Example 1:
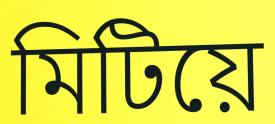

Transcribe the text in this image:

মিটিয়ে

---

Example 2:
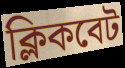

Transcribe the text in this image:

ক্লিকবেট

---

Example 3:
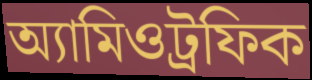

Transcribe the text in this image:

অ্যামিওট্রফিক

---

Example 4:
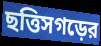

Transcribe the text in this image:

ছত্তিসগড়ের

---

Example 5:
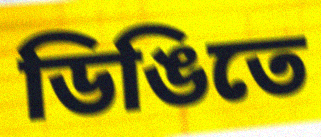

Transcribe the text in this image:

ডিঙিতে